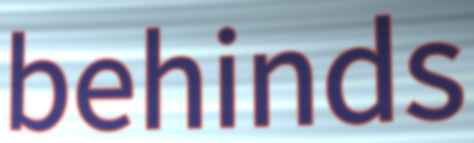
behinds